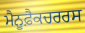
ਮੈਨੂਫ਼ੈਕਚਰਰਸ